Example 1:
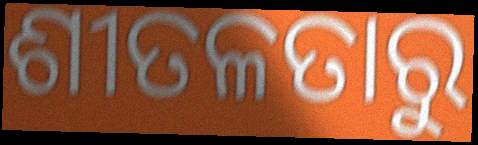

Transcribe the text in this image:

ଶୀତଳତାରୁ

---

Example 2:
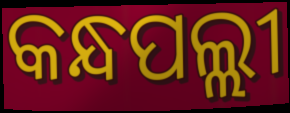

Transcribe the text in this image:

କନ୍ଧପଲ୍ଲୀ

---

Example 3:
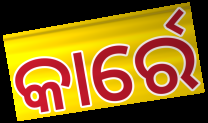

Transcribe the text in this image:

କାର୍ରେ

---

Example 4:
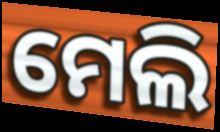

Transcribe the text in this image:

ମେଲି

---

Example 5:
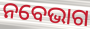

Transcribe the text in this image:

ନବେଭାଗ